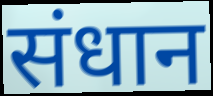
संधान